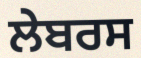
ਲੇਬਰਸ